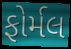
ફોર્મલ